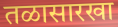
तळासारखा